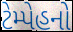
ટેમ્પેહનો